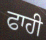
ਫਾਹੀ